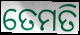
ତେମତି